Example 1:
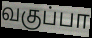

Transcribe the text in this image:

வகுப்பா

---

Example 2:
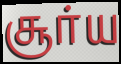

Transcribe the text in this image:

சூர்ய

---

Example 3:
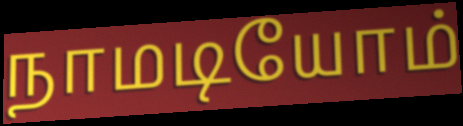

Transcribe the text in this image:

நாமடியோம்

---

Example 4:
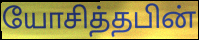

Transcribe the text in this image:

யோசித்தபின்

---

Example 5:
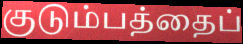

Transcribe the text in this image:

குடும்பத்தைப்